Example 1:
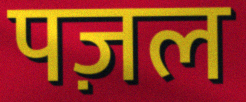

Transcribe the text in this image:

पज़ल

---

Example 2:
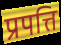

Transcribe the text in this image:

प्रपत्ति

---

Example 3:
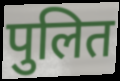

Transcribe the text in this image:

पुलित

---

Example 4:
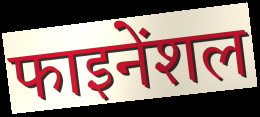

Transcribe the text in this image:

फाइनेंशल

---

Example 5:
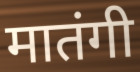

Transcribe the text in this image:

मातंगी